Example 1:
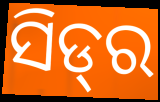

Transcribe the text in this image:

ସିଡ୍‌ର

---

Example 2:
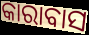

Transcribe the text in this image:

କାରାବାସ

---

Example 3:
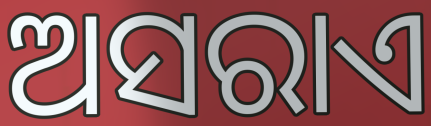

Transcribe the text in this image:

ଅସରାଏ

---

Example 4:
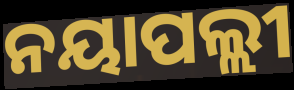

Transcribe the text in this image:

ନୟାପଲ୍ଲୀ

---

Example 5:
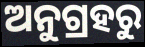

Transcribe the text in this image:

ଅନୁଗ୍ରହରୁ